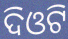
ଦିଓଟି